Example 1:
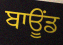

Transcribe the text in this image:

ਬਾਊਂਡ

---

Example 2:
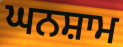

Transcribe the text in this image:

ਘਨਸ਼ਾਮ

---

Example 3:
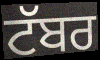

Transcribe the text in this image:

ਟੱਬਰ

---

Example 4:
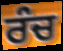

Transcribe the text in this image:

ਰੰਚ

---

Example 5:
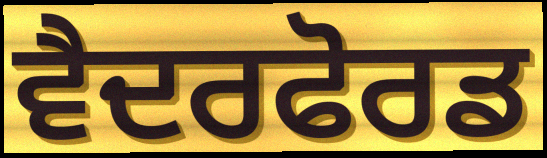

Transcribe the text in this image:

ਵੈਦਰਫੋਰਡ